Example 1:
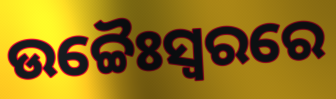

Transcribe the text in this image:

ଉଚ୍ଚୈଃସ୍ୱରରେ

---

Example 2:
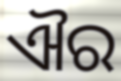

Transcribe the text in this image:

ଐର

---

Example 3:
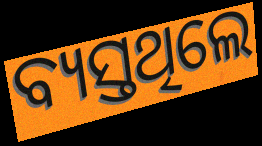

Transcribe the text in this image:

ବ୍ୟସ୍ତଥିଲେ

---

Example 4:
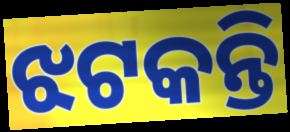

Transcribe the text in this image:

ଝଟକନ୍ତି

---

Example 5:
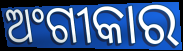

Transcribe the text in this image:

ଅଂଗୀକାର